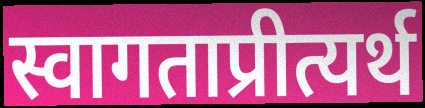
स्वागताप्रीत्यर्थ